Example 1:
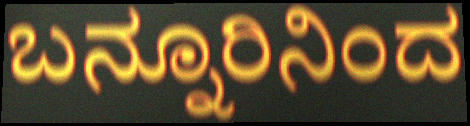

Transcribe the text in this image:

ಬನ್ನೂರಿನಿಂದ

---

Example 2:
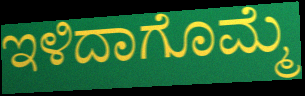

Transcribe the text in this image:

ಇಳಿದಾಗೊಮ್ಮೆ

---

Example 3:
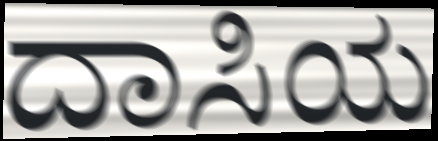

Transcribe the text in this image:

ದಾಸಿಯ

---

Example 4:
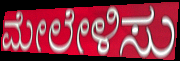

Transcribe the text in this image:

ಮೇಲೇಳಿಸು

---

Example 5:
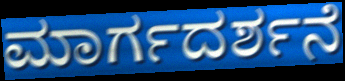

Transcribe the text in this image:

ಮಾರ್ಗದರ್ಶನೆ